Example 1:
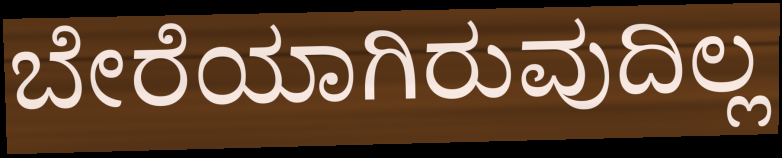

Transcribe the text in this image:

ಬೇರೆಯಾಗಿರುವುದಿಲ್ಲ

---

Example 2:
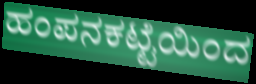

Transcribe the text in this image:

ಹಂಪನಕಟ್ಟೆಯಿಂದ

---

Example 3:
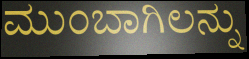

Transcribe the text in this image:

ಮುಂಬಾಗಿಲನ್ನು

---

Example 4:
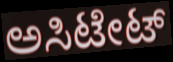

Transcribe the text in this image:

ಅಸಿಟೇಟ್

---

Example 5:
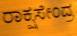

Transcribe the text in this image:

ರಾಕ್ಷಸೇಂದ್ರ